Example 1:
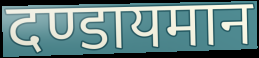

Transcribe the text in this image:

दण्डायमान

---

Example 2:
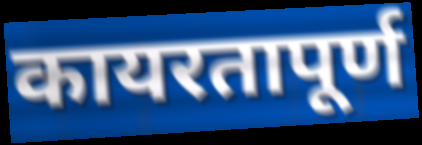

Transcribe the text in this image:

कायरतापूर्ण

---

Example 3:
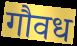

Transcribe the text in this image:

गौवध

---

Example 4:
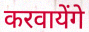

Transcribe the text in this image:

करवायेंगे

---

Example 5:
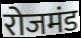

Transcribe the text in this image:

रोजमंड